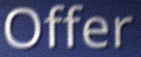
Offer